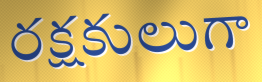
రక్షకులుగా